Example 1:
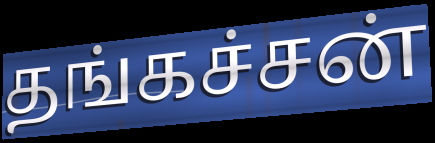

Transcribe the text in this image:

தங்கச்சன்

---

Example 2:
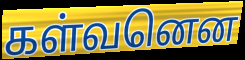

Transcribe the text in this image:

கள்வனென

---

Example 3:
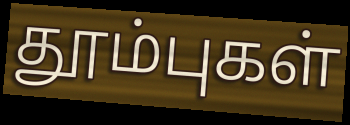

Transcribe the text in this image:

தூம்புகள்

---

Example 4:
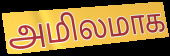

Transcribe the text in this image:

அமிலமாக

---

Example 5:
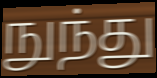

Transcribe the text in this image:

நுந்து